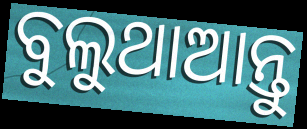
ବୁଲୁଥାଆନ୍ତୁ